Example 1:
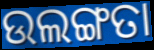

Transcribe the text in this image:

ଉଲଙ୍ଗତା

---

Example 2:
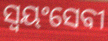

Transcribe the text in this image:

ସ୍ୱୟଂସେବୀ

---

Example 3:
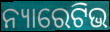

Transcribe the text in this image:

ନ୍ୟାରେଟିଭ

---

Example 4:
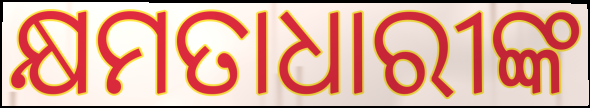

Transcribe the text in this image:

କ୍ଷମତାଧାରୀଙ୍କ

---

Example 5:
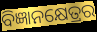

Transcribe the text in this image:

ବିଜ୍ଞାନକ୍ଷେତ୍ରର